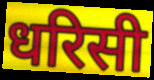
धरिसी